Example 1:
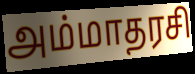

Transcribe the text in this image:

அம்மாதரசி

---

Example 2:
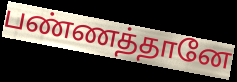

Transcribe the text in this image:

பண்ணத்தானே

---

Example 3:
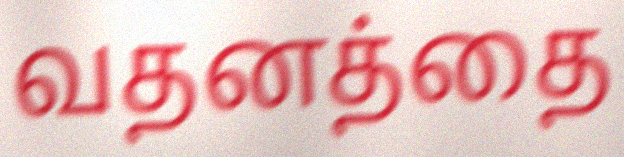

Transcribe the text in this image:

வதனத்தை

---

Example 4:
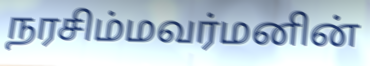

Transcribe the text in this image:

நரசிம்மவர்மனின்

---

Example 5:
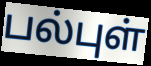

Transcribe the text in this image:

பல்புள்